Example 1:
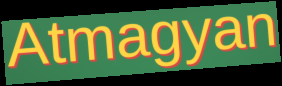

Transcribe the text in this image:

Atmagyan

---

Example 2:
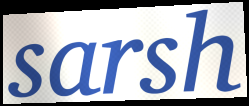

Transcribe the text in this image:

sarsh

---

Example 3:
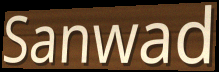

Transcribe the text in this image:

Sanwad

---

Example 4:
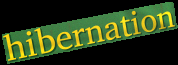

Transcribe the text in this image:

hibernation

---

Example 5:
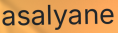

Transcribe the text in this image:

asalyane